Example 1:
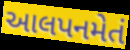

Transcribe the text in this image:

આલપનમેતં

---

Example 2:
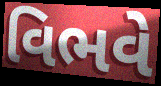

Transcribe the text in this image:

વિભવે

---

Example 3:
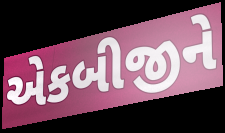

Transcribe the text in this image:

એકબીજીને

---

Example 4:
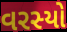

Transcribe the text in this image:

વરસ્યો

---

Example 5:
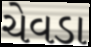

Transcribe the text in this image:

ચેવડા